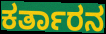
ಕರ್ತಾರನ